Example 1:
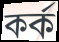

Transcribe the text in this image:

কৰ্ক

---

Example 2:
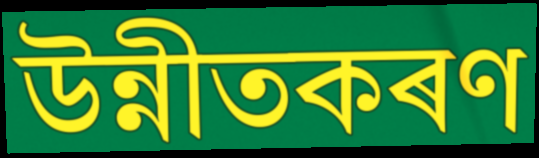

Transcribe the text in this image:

উন্নীতকৰণ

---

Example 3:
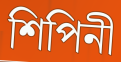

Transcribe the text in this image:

শিপিনী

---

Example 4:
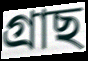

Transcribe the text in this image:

গ্ৰাছ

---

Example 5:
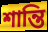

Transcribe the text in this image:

শান্তি